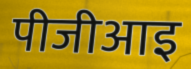
पीजीआइ